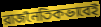
রাজনৈতিকভাবেই